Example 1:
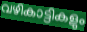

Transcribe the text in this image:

വഴികാട്ടികളും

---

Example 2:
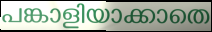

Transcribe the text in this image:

പങ്കാളിയാക്കാതെ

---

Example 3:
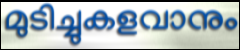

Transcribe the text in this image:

മുടിച്ചുകളവാനും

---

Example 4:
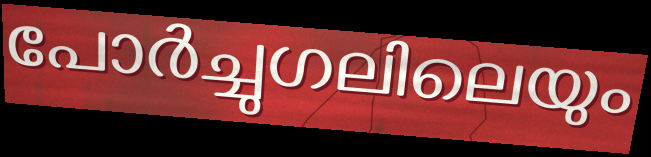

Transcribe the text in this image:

പോർച്ചുഗലിലെയും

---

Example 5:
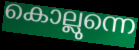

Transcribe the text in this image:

കൊല്ലുന്നെ